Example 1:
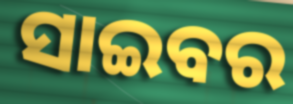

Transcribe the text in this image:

ସାଇବର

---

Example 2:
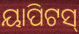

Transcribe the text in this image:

ୟାପିଟସ୍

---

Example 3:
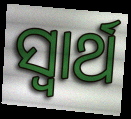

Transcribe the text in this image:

ସ୍ୱାର୍ଥ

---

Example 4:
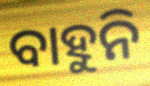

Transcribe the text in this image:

ବାହୁନି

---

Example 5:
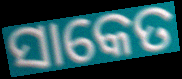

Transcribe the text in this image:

ସାକେତ